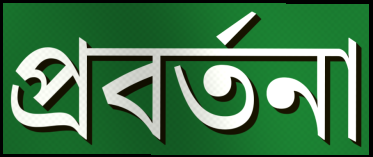
প্রবর্তনা